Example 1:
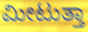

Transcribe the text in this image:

ಮೀಟುತ್ತಾ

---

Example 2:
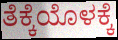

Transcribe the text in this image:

ತೆಕ್ಕೆಯೊಳಕ್ಕೆ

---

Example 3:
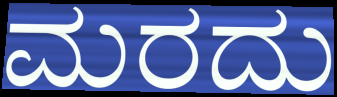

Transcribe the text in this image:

ಮರದು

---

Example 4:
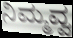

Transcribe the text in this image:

ನಿಮ್ಮವ್ವ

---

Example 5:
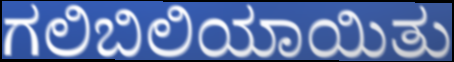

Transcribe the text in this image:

ಗಲಿಬಿಲಿಯಾಯಿತು